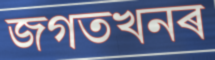
জগতখনৰ